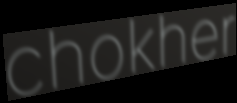
chokher